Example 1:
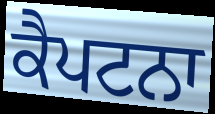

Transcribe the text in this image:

ਕੈਪਟਨਾ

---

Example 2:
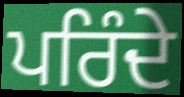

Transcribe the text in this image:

ਪਰਿੰਦੇ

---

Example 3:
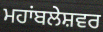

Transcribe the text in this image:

ਮਹਾਂਬਲੇਸ਼ਵਰ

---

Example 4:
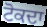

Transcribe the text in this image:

ਟੋਕਦਾ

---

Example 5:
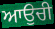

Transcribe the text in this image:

ਆਉਚੀ